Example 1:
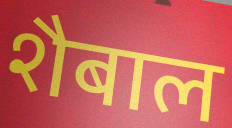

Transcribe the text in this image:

शैबाल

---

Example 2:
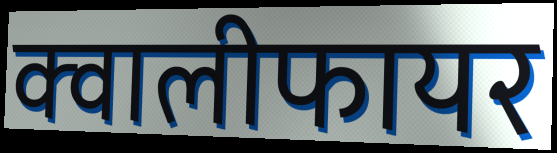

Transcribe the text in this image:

क्‍वालीफायर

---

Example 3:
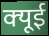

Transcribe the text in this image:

क्यूई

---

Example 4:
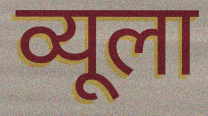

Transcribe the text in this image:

व्यूला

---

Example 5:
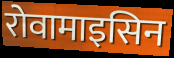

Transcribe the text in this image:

रोवामाइसिन